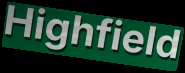
Highfield